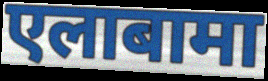
एलाबामा